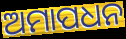
ଅମାପଧନ